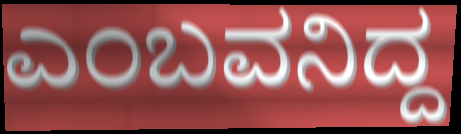
ಎಂಬವನಿದ್ದ